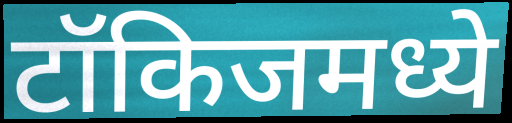
टॉकिजमध्ये